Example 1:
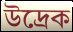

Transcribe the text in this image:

উদ্রেক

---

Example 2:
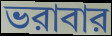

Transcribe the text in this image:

ভরাবার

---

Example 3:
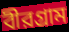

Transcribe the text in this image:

বীরগ্রাম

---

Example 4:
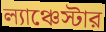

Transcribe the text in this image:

ল্যাঞ্চেস্টার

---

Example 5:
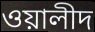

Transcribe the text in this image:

ওয়ালীদ